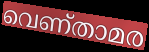
വെണ്താമര